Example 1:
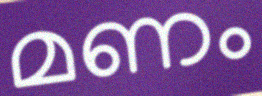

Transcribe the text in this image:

മണം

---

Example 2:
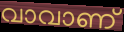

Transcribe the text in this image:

വാവാണ്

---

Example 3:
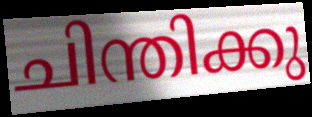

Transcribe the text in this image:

ചിന്തിക്കു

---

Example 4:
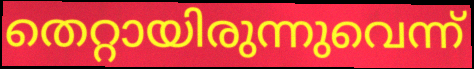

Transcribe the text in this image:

തെറ്റായിരുന്നുവെന്ന്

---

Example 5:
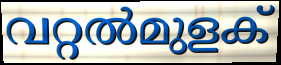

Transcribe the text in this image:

വറ്റൽമുളക്